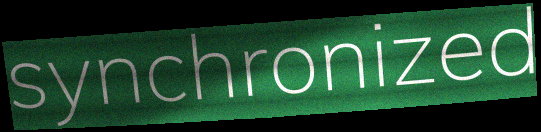
synchronized